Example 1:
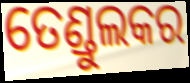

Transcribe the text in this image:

ତେଣ୍ଡୁଲକର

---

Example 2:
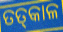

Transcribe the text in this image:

ତତ୍‌କାଳ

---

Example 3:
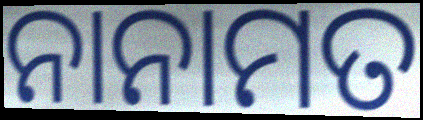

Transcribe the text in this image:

ନାନାମତ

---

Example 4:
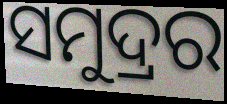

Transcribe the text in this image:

ସମୁଦ୍ରର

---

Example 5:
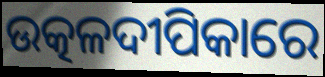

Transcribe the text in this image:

ଉତ୍କଳଦୀପିକାରେ